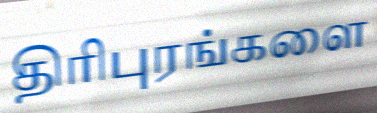
திரிபுரங்களை